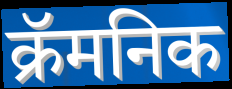
क्रॅमनिक